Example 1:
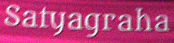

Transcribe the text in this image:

Satyagraha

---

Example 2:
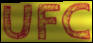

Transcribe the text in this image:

UFC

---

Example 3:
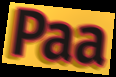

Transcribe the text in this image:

Paa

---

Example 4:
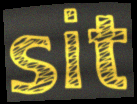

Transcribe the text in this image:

sit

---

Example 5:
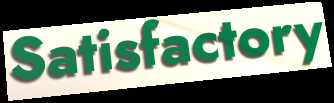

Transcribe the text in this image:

Satisfactory